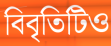
বিবৃতিটিও